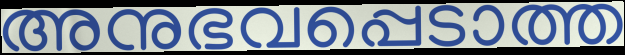
അനുഭവപ്പെടാത്ത